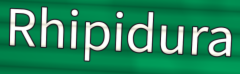
Rhipidura